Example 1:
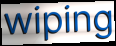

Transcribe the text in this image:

wiping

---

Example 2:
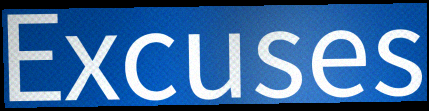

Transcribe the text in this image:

Excuses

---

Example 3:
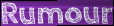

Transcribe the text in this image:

Rumour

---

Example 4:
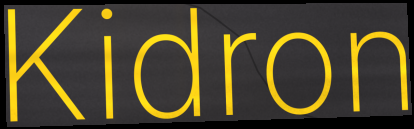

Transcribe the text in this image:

Kidron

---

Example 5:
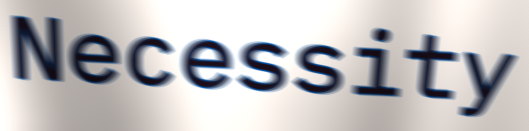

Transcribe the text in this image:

Necessity